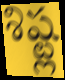
శిష్ట్ల